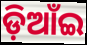
ଡ଼ିଆଁଇ